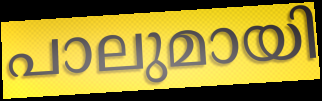
പാലുമായി